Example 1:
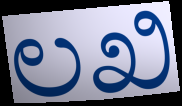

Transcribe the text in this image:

ಲಖಿ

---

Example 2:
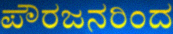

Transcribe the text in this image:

ಪೌರಜನರಿಂದ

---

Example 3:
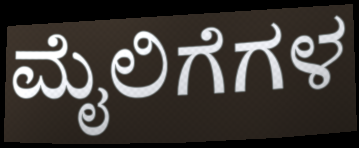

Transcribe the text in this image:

ಮೈಲಿಗೆಗಳ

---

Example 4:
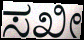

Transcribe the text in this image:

ಸಖೀ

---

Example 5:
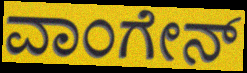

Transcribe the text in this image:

ವಾಂಗೇನ್